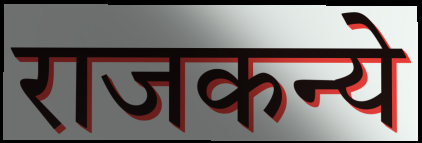
राजकन्ये